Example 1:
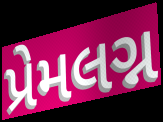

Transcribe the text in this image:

પ્રેમલગ્ન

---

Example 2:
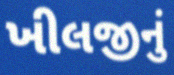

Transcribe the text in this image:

ખીલજીનું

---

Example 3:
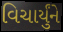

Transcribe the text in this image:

વિચાર્યુંને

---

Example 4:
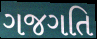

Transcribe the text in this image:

ગજગતિ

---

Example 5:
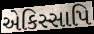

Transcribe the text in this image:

એકિસ્સાપિ